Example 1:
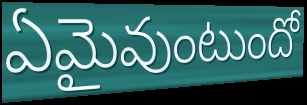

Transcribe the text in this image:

ఏమైవుంటుందో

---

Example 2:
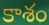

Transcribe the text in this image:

కాశం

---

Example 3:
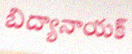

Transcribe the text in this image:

బిద్యానాయక్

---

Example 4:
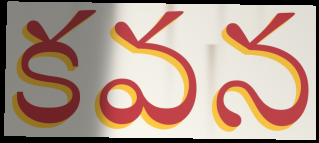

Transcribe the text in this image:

కవన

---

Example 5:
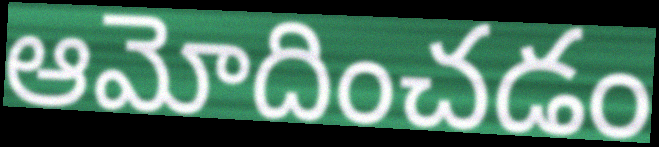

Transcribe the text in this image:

ఆమోదించడం